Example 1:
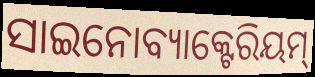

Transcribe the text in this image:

ସାଇନୋବ୍ୟାକ୍ଟେରିୟମ୍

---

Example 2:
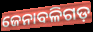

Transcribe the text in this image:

ଜେନାବଳିଗଡ଼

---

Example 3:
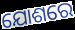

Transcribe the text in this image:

ଯୋଶରେ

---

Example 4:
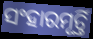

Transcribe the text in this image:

ସଂହାରମୂର୍ତ୍ତି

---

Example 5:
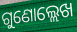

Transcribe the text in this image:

ଗୁଣୋଲ୍ଲେଖ